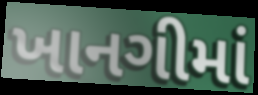
ખાનગીમાં